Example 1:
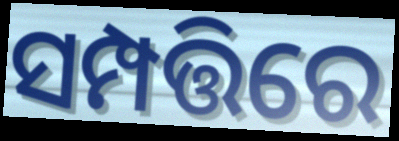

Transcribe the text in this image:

ସମ୍ପତ୍ତିରେ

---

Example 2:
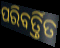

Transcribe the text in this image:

ପରିବର୍ତ୍ତିତ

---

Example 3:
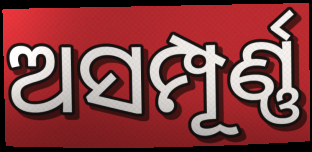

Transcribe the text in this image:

ଅସମ୍ପୂର୍ଣ୍ଣ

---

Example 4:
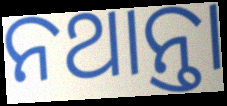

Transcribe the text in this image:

ନଥାନ୍ତା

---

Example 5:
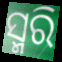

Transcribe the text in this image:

ସ୍ମରି